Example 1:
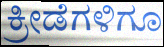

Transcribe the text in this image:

ಕ್ರೀಡೆಗಳಿಗೂ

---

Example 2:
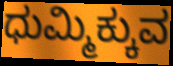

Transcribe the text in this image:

ಧುಮ್ಮಿಕ್ಕುವ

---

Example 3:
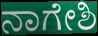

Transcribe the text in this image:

ನಾಗೇಶಿ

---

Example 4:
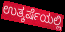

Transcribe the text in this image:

ಉತ್ಕರ್ಷೆಯಲ್ಲಿ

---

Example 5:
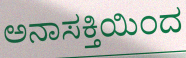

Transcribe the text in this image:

ಅನಾಸಕ್ತಿಯಿಂದ